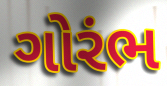
ગોરંભ